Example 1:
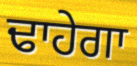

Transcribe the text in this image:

ਢਾਹੇਗਾ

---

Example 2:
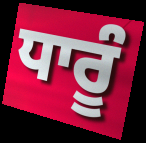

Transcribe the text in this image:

ਧਾਰੂੰ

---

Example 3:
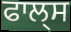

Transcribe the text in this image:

ਫਾਲ੍ਸ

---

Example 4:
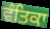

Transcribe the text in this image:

ਵੰਤਿਕਾ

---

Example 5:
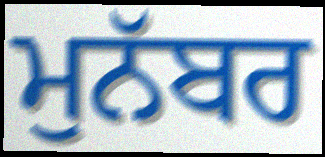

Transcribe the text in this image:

ਮੁਨੱਬਰ